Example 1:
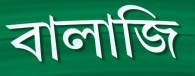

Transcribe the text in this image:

বালাজি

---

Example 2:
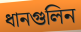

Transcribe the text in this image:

ধানগুলিন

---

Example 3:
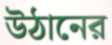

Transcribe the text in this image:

উঠানের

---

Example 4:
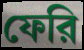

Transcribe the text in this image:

ফেরি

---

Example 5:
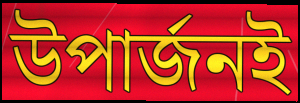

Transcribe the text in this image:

উপার্জনই